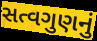
સત્વગુણનું